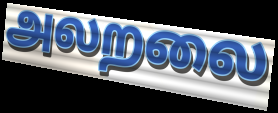
அலறலை